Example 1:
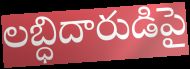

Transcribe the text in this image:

లబ్ధిదారుడిపై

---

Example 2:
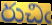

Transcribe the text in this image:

రుచిఁ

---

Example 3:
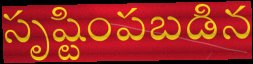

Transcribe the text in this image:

సృష్టింపబడిన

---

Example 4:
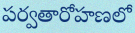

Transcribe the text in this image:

పర్వతారోహణలో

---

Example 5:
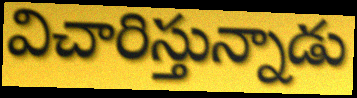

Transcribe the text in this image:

విచారిస్తున్నాడు